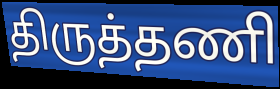
திருத்தணி